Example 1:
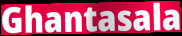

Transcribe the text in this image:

Ghantasala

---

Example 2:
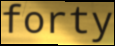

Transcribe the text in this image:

forty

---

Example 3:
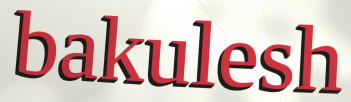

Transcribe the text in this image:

bakulesh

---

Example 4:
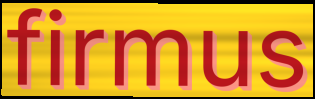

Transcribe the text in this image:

firmus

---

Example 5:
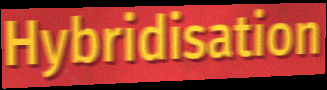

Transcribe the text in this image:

Hybridisation